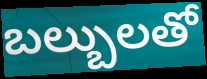
బల్బులతో